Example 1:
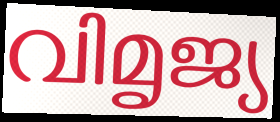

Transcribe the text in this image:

വിമൃജ്യ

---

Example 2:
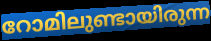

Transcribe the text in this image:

റോമിലുണ്ടായിരുന്ന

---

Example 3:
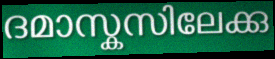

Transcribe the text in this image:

ദമാസ്കസിലേക്കു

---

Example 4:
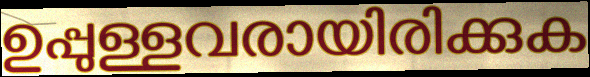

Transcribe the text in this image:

ഉപ്പുള്ളവരായിരിക്കുക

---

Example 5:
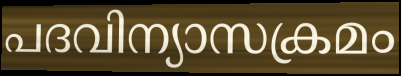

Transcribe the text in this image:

പദവിന്യാസക്രമം